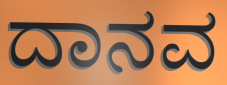
ದಾನವ